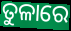
ତୁଳାରେ